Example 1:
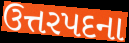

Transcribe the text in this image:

ઉત્તરપદના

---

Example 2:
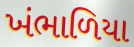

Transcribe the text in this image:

ખંભાળિયા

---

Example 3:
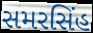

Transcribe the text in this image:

સમરસિંહ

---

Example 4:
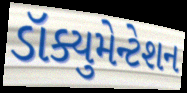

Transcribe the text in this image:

ડૉક્યુમેન્ટેશન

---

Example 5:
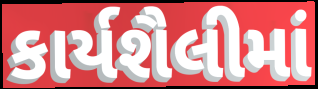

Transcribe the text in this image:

કાર્યશૈલીમાં